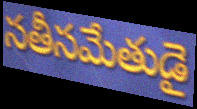
సతీసమేతుడై